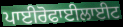
ਪਾਈਰੋਫਾਈਲਾਈਟ